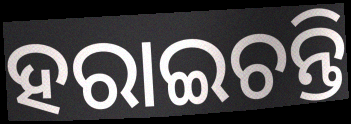
ହରାଇଚନ୍ତି